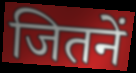
जितनें